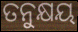
ତନୁକ୍ଷୟ